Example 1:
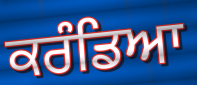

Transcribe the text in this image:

ਕਰੰਡਿਆ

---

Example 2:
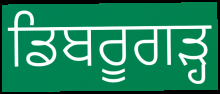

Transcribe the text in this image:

ਡਿਬਰੂਗੜ੍ਹ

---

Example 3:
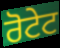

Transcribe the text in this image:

ਰੋਟੇਟ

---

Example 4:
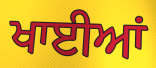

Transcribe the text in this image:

ਖਾਈਆਂ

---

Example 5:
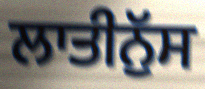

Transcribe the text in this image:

ਲਾਤੀਨੁੱਸ